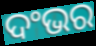
ଦଂଭର